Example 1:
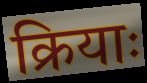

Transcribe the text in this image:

क्रियाः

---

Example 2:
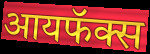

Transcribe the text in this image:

आयफॅक्स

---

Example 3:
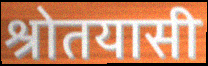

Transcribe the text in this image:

श्रोतयासी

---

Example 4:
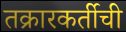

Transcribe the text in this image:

तक्रारकर्तीची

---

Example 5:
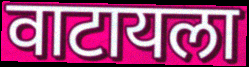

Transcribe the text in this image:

वाटायला